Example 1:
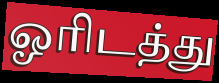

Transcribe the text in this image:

ஓரிடத்து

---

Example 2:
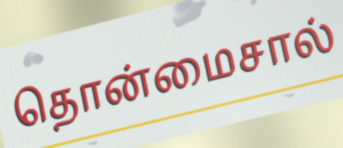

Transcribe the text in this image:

தொன்மைசால்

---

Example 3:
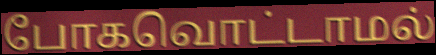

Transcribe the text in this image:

போகவொட்டாமல்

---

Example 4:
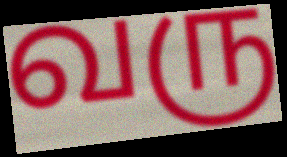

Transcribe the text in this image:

வரு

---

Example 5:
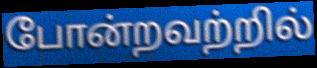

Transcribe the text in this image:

போன்றவற்றில்